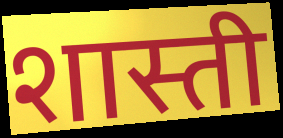
शास्ती